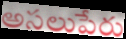
అసలుపేరు